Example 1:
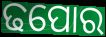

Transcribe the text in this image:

ଢପୋର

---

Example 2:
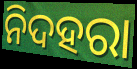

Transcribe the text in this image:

ନିଦହରା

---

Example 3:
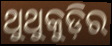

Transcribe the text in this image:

ଥୁଥୁକୁଡ଼ିର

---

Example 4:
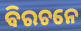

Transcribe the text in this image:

ବିରଚନେ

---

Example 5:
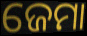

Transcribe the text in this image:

ଜେମା